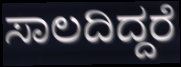
ಸಾಲದಿದ್ದರೆ